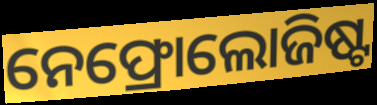
ନେଫ୍ରୋଲୋଜିଷ୍ଟ